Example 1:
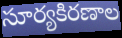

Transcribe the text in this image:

సూర్యకిరణాల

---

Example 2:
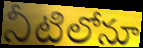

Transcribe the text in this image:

నీటిలోనూ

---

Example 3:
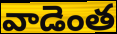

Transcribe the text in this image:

వాడెంత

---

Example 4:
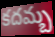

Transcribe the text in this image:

కదమ్బ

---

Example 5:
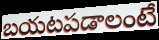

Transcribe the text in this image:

బయటపడాలంటే